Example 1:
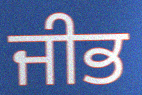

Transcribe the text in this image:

ਜੀਭ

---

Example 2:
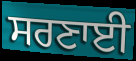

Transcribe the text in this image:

ਸਰਣਾਈ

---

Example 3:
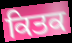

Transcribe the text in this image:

ਕਿਤਕ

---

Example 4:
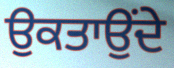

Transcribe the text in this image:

ਉਕਤਾਉਂਦੇ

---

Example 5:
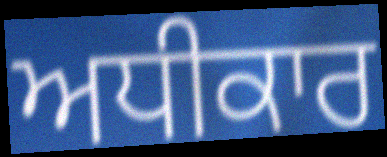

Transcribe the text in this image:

ਅਧੀਕਾਰ